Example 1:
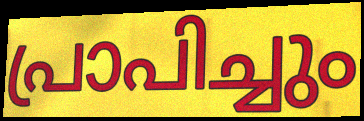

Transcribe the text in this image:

പ്രാപിച്ചും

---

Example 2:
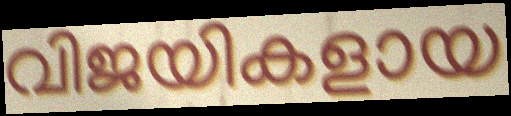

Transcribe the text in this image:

വിജയികളായ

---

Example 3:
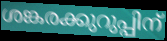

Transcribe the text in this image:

ശങ്കരക്കുറുപ്പിന്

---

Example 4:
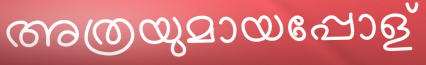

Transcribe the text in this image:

അത്രയുമായപ്പോള്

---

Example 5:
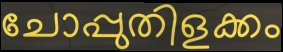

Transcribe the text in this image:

ചോപ്പുതിളക്കം